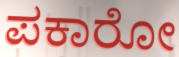
ಪಕಾರೋ